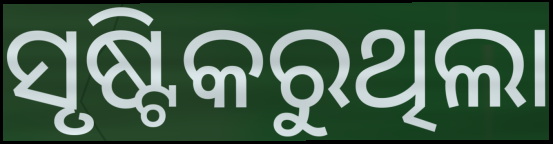
ସୃଷ୍ଟିକରୁଥିଲା